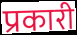
प्रकारी